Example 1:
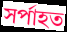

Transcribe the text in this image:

সর্পাহত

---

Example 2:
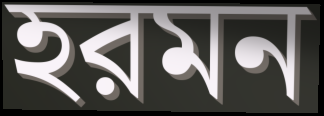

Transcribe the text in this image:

হরমন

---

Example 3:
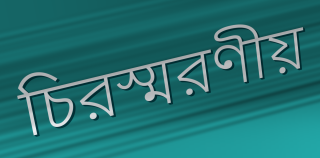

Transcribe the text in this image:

চিরস্মরণীয়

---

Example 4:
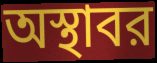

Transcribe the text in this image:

অস্থাবর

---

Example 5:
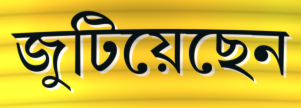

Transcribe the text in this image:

জুটিয়েছেন